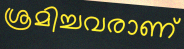
ശ്രമിച്ചവരാണ്